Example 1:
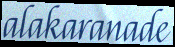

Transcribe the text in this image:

alakaranade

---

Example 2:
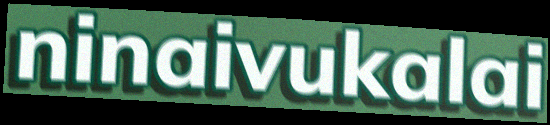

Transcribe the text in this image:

ninaivukalai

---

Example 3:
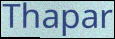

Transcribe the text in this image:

Thapar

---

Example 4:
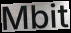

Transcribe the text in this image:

Mbit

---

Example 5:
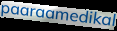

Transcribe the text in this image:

paaraamedikal